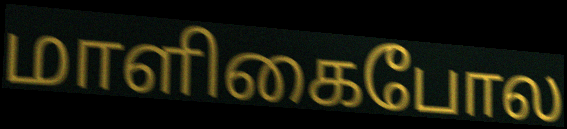
மாளிகைபோல